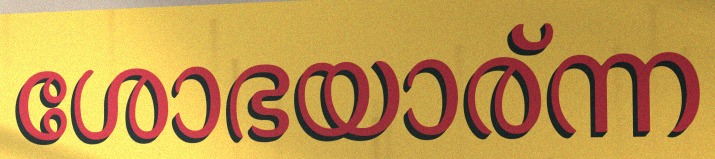
ശോഭയാര്ന്ന